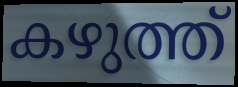
കഴുത്ത്